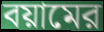
বয়ামের